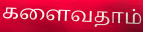
களைவதாம்